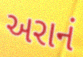
અરાનં